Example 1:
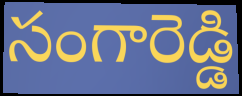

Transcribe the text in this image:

సంగారెడ్డి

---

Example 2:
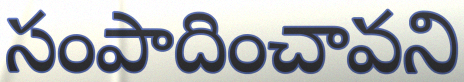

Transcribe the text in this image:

సంపాదించావని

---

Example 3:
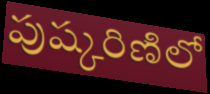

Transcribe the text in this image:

పుష్కరిణిలో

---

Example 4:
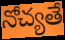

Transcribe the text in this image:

నోచ్యతే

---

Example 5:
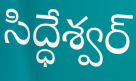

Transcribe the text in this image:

సిద్ధేశ్వర్